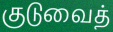
குடுவைத்